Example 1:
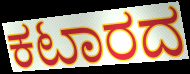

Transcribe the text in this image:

ಕಟಾರದ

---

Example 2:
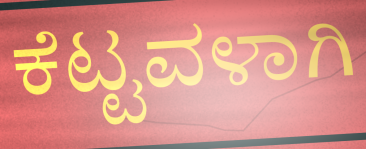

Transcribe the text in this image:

ಕೆಟ್ಟವಳಾಗಿ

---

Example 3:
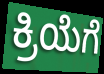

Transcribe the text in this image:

ಕ್ರಿಯೆಗೆ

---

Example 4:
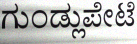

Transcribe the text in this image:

ಗುಂಡ್ಲುಪೇಟೆ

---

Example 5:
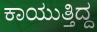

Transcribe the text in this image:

ಕಾಯುತ್ತಿದ್ದ